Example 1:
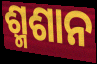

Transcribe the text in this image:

ଶ୍ମଶାନ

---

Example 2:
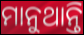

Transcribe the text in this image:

ମାନୁଥାନ୍ତି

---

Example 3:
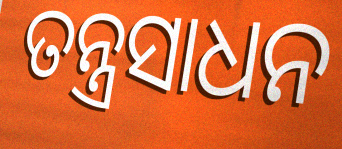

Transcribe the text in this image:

ତନ୍ତ୍ରସାଧନ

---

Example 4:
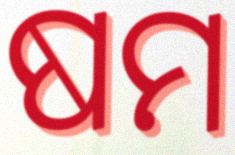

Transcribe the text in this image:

ଷମ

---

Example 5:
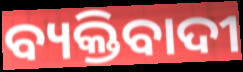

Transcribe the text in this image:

ବ୍ୟକ୍ତିବାଦୀ